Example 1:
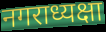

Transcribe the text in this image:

नगराध्यक्षा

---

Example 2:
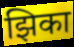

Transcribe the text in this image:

झिका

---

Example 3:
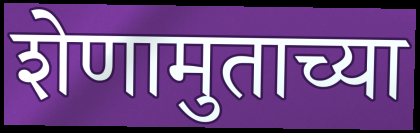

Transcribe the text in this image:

शेणामुताच्या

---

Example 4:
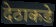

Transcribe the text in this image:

देठाकडे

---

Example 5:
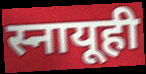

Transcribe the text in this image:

स्नायूही